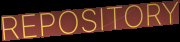
REPOSITORY